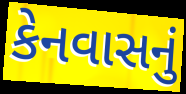
કેનવાસનું